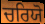
ਚਰਿਯੋ